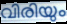
വിരിയും